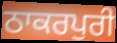
ਠਾਕਰਪੁਰੀ